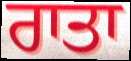
ਰਾਤਾ